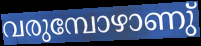
വരുമ്പോഴാണു്